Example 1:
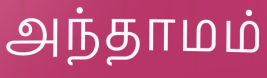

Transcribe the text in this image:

அந்தாமம்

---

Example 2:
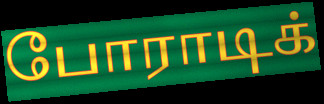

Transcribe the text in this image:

போராடிக்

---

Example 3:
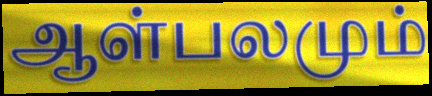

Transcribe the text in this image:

ஆள்பலமும்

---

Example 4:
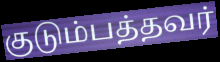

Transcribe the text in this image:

குடும்பத்தவர்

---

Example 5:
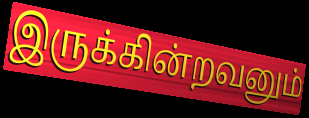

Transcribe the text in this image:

இருக்கின்றவனும்